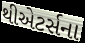
થીએટર્સના